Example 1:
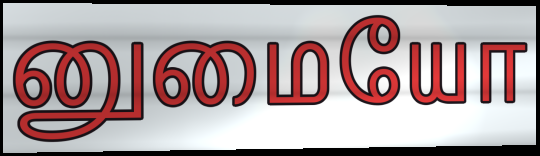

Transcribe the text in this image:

னுமையோ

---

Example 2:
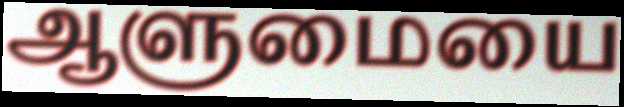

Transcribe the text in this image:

ஆளுமையை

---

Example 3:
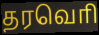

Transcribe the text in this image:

தரவெரி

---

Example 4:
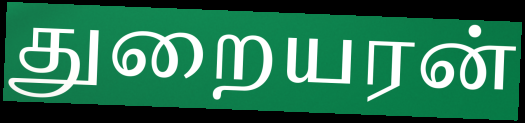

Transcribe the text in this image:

துறையரன்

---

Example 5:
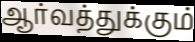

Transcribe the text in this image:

ஆர்வத்துக்கும்